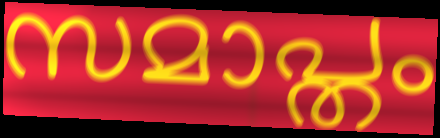
സമാപ്തം